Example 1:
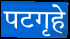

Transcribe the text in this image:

पटगृहे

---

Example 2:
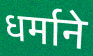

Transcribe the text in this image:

धर्माने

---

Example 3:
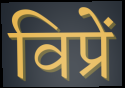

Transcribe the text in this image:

विप्रें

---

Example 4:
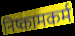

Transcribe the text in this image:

निष्कामकर्म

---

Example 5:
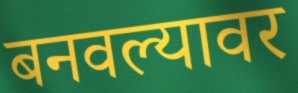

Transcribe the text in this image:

बनवल्यावर